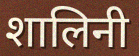
शालिनी